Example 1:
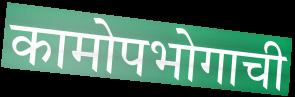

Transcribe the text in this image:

कामोपभोगाची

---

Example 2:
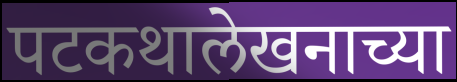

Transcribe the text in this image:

पटकथालेखनाच्या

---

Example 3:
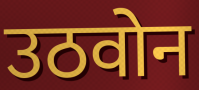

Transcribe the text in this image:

उठवोन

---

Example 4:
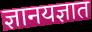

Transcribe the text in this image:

ज्ञानयज्ञात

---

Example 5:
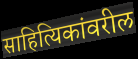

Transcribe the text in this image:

साहित्यिकांवरील